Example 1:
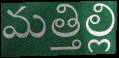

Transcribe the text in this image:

మత్తిల్లి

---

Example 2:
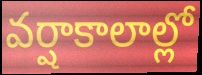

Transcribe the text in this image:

వర్షాకాలాల్లో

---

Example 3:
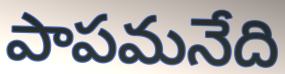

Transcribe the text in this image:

పాపమనేది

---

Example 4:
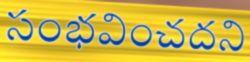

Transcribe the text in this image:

సంభవించదని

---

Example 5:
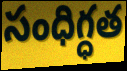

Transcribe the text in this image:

సంధిగ్ధత